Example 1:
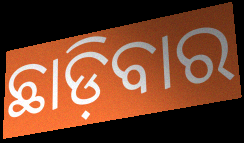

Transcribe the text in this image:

ଛାଡ଼ିବାର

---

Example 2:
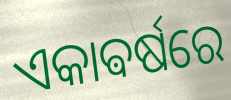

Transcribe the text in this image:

ଏକାଵର୍ଷରେ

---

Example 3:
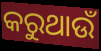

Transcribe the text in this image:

କରୁଥାଉଁ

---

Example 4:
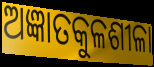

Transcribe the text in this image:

ଅଜ୍ଞାତକୁଳଶୀଳା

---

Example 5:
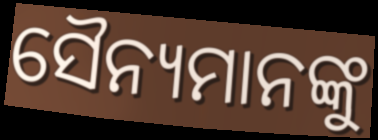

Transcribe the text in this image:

ସୈନ୍ୟମାନଙ୍କୁ